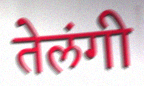
तेलंगी